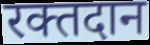
रक्तदान